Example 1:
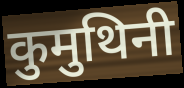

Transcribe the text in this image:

कुमुथिनी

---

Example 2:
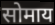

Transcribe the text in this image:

सोमाय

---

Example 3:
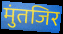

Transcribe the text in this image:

मुंतजिर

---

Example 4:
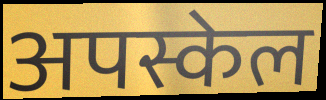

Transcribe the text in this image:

अपस्केल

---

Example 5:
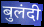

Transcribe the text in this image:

बुलंदी